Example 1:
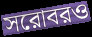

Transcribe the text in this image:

সরোবরও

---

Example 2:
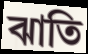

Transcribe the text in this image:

ঝাতি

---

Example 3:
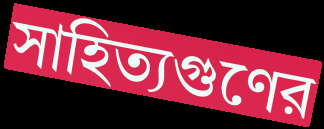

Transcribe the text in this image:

সাহিত্যগুণের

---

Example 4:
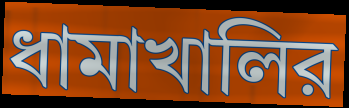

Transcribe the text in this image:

ধামাখালির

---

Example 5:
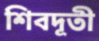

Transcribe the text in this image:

শিবদূতী